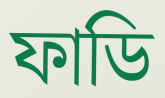
ফাডি